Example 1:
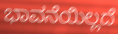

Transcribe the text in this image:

ಭಾವನೆಯಿಲ್ಲದೆ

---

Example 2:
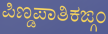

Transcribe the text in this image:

ಪಿಣ್ಡಪಾತಿಕಙ್ಗಂ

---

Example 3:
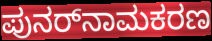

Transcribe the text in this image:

ಪುನರ್‌ನಾಮಕರಣ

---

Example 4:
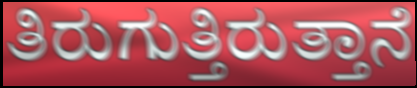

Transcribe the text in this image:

ತಿರುಗುತ್ತಿರುತ್ತಾನೆ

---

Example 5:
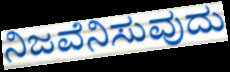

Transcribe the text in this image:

ನಿಜವೆನಿಸುವುದು